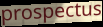
prospectus